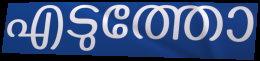
എടുത്തോ